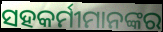
ସହକର୍ମୀମାନଙ୍କର